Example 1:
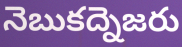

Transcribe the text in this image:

నెబుకద్నెజరు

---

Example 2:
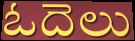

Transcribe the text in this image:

ఓదెలు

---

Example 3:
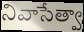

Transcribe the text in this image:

నివాసేత్వా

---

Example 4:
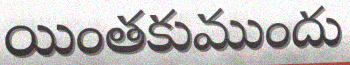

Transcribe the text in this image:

యింతకుముందు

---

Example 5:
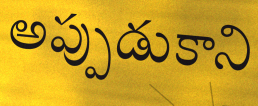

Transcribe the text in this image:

అప్పుడుకాని